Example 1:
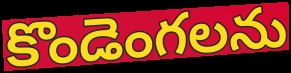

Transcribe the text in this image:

కొండెంగలను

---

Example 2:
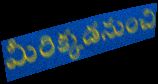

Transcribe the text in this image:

మీరిక్కడనుంచి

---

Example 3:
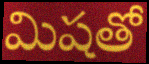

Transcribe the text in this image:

మిషతో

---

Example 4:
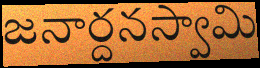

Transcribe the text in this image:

జనార్దనస్వామి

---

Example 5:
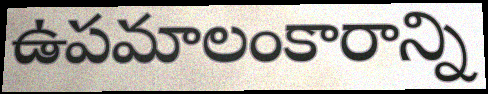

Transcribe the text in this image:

ఉపమాలంకారాన్ని